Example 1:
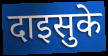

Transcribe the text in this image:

दाइसुके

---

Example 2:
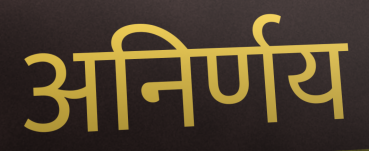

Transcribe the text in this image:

अनिर्णय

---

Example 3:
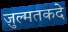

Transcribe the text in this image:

ज़ुल्मतकदे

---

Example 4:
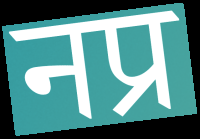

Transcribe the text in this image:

नप्र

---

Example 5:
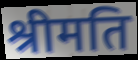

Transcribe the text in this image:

श्रीमति